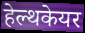
हेल्थकेयर